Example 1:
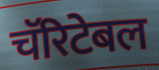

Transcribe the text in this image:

चॅरिटेबल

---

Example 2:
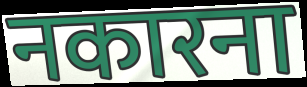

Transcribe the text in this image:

नकारना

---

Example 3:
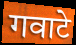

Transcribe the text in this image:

गवाटे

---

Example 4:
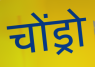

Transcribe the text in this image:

चोंड्रो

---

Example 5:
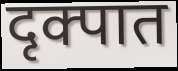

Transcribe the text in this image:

दृक्पात